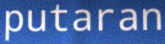
putaran